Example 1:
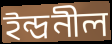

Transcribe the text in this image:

ইন্দ্ৰনীল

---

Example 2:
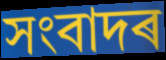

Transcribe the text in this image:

সংবাদৰ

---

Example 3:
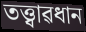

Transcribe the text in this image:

তত্ত্বাৱধান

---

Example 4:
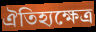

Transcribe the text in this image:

ঐতিহ্যক্ষেত্ৰ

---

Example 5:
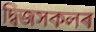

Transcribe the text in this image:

দ্বিজসকলৰ